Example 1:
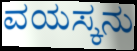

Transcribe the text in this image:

ವಯಸ್ಕನು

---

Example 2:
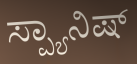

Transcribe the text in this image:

ಸ್ಪ್ಯಾನಿಷ್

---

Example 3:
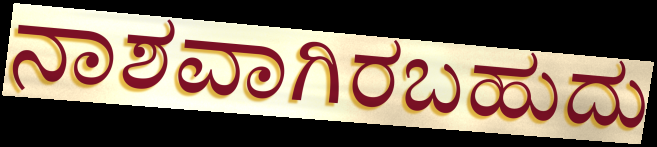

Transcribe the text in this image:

ನಾಶವಾಗಿರಬಹುದು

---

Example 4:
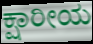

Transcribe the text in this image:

ಕ್ಷಾರೀಯ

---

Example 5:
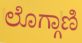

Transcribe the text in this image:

ಲೊಗ್ಗಾಣಿ